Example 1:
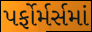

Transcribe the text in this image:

પર્ફોર્મર્સમાં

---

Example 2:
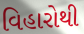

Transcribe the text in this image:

વિહારોથી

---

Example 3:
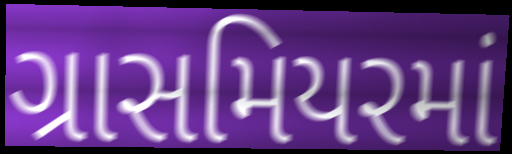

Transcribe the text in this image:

ગ્રાસમિયરમાં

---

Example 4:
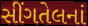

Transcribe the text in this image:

સીંગતેલનાં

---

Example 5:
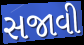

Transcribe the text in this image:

સજાવી